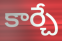
కార్చే